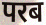
परब